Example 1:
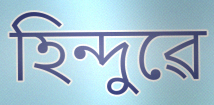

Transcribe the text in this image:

হিন্দুৱে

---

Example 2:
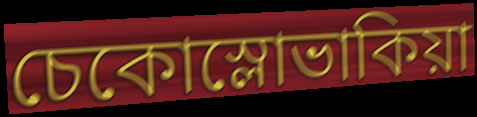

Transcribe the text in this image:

চেকোস্লোভাকিয়া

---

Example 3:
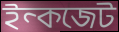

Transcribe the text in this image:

ইন্কজেট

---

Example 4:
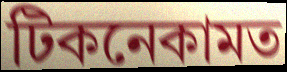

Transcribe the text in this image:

টিকনেকামত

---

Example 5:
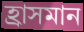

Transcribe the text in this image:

হ্ৰাসমান